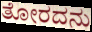
ತೋರದನು